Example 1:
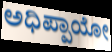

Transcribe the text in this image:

ಅಧಿಪ್ಪಾಯೋ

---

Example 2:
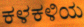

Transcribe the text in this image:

ಕಳಕಳಿಯ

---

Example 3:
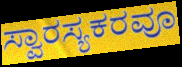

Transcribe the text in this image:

ಸ್ವಾರಸ್ಯಕರವೂ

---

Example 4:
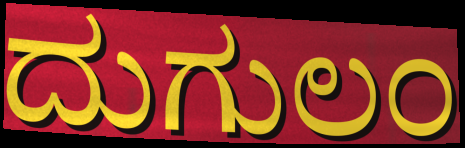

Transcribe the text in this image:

ದುಗುಲಂ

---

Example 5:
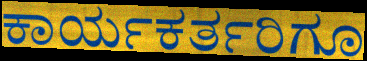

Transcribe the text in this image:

ಕಾರ್ಯಕರ್ತರಿಗೂ